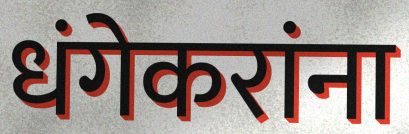
धंगेकरांना